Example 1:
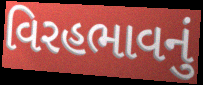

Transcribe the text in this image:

વિરહભાવનું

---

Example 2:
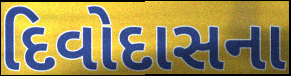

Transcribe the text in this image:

દિવોદાસના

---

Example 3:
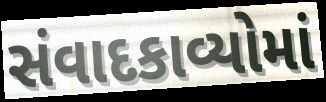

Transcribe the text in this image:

સંવાદકાવ્યોમાં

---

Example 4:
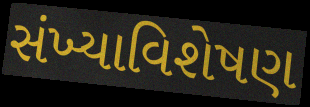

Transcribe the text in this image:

સંખ્યાવિશેષણ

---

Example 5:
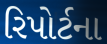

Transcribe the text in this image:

રિપોર્ટના